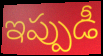
ఇప్పుడీ